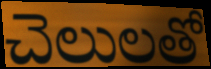
చెలులతో